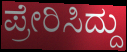
ಪ್ರೇರಿಸಿದ್ದು